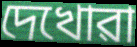
দেখোৱা